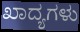
ಖಾದ್ಯಗಳು